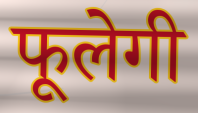
फूलेगी